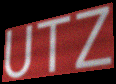
UTZ